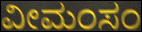
ವೀಮಂಸಂ